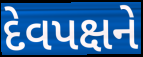
દેવપક્ષને